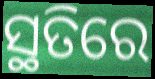
ସ୍ଥତିରେ